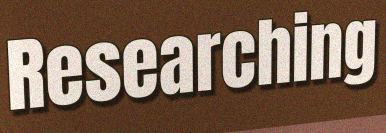
Researching